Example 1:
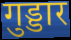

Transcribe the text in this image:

गुड्डार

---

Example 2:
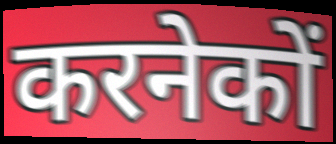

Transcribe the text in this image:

करनेकों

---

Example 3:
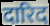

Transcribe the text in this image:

दारिद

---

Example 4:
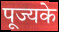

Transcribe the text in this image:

पूज्यके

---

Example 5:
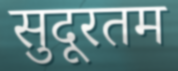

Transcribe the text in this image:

सुदूरतम